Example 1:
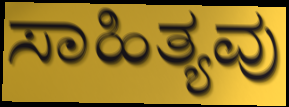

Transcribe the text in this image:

ಸಾಹಿತ್ಯವು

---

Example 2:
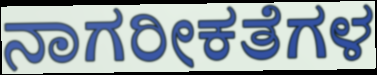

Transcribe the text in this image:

ನಾಗರೀಕತೆಗಳ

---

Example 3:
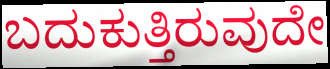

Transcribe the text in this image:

ಬದುಕುತ್ತಿರುವುದೇ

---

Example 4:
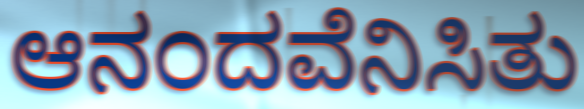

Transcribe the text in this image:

ಆನಂದವೆನಿಸಿತು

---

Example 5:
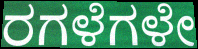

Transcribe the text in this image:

ರಗಳೆಗಳೇ